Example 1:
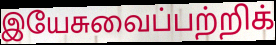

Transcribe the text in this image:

இயேசுவைப்பற்றிக்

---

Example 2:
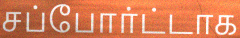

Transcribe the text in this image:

சப்போர்ட்டாக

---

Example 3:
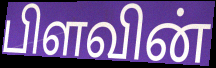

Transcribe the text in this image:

பிளவின்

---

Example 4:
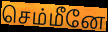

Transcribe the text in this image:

செம்மீனே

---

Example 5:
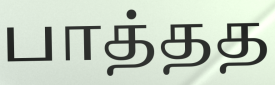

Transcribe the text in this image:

பாத்தத